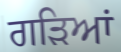
ਗੜਿਆਂ